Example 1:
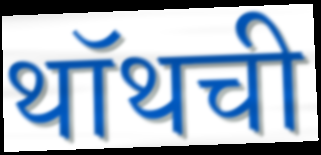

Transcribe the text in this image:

थॉथची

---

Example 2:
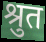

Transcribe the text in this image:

श्रुत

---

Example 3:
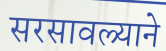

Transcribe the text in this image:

सरसावल्याने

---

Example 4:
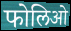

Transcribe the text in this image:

फोलिओ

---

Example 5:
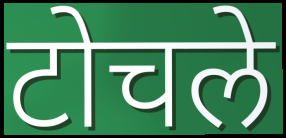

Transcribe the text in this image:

टोचले